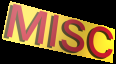
MISC